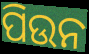
ପିଉନ